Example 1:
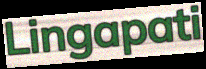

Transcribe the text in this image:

Lingapati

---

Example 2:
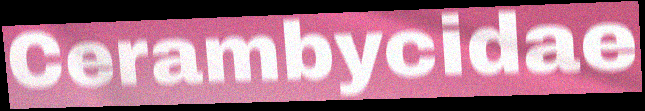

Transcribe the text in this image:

Cerambycidae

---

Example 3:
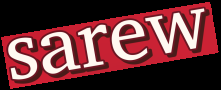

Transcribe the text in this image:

sarew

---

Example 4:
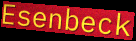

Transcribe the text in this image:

Esenbeck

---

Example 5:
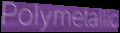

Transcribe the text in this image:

Polymetallic